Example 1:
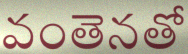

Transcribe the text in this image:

వంతెనతో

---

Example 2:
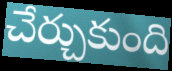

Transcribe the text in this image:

చేర్చుకుంది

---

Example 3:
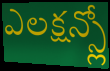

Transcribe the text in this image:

ఎలక్షన్స్లో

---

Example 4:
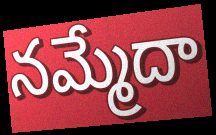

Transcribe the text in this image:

నమ్మేదా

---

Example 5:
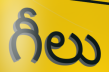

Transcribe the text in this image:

గీలు